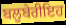
ਬਲੂਬੇਰੀਇਹ